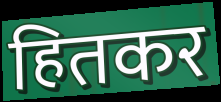
हितकर